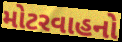
મોટરવાહનો